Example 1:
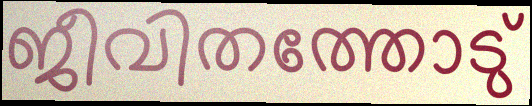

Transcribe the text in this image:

ജീവിതത്തോടു്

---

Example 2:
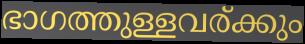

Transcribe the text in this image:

ഭാഗത്തുള്ളവര്ക്കും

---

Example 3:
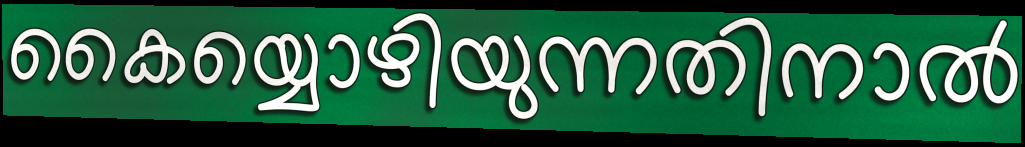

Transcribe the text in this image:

കൈയ്യൊഴിയുന്നതിനാൽ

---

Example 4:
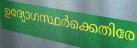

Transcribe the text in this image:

ഉദ്യോഗസ്ഥർക്കെതിരേ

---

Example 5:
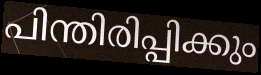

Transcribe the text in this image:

പിന്തിരിപ്പിക്കും